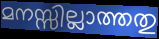
മനസ്സില്ലാത്തതു